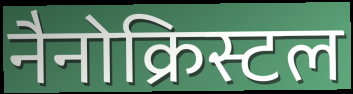
नैनोक्रिस्टल